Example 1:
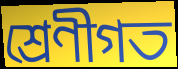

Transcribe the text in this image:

শ্ৰেণীগত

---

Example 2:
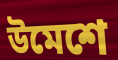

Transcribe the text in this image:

উমেশে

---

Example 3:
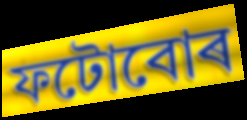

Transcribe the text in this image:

ফটোবোৰ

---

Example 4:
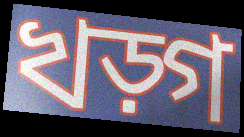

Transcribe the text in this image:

খড়্গ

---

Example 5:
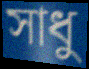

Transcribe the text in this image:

সাধু